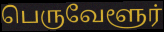
பெருவேளூர்